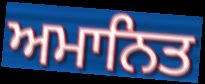
ਅਮਾਨਿਤ